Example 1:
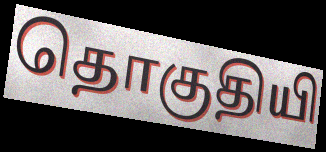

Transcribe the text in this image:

தொகுதியி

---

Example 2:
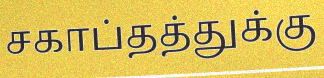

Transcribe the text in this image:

சகாப்தத்துக்கு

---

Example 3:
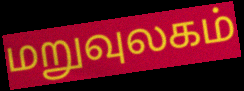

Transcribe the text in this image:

மறுவுலகம்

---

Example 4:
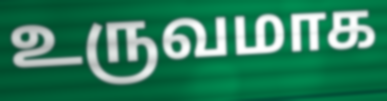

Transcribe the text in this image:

உருவமாக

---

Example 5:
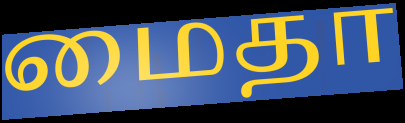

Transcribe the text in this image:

மைதா